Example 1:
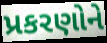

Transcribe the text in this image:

પ્રકરણોને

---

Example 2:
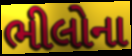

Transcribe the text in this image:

ભીલોના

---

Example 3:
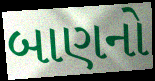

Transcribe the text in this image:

બાણનો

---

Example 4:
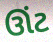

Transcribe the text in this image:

ઊંટ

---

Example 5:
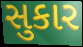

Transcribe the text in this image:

સુકાર